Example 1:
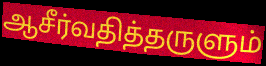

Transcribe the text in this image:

ஆசீர்வதித்தருளும்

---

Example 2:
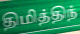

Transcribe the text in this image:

திமித்திந்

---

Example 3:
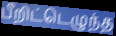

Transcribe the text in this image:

பீறிட்டெழுந்த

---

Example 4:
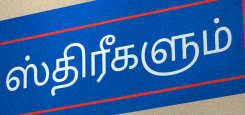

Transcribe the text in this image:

ஸ்திரீகளும்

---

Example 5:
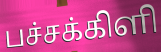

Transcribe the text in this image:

பச்சக்கிளி